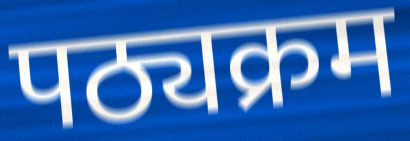
पठ्यक्रम